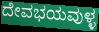
ದೇವಭಯವುಳ್ಳ